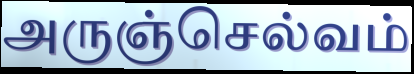
அருஞ்செல்வம்